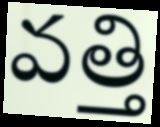
వత్తి